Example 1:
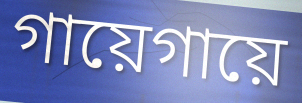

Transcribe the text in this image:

গায়েগায়ে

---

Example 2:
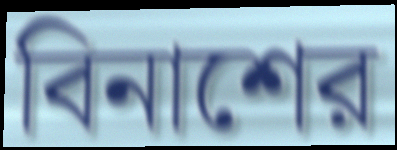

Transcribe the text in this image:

বিনাশের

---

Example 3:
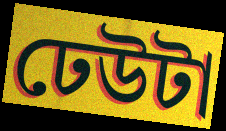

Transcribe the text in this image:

ঢেউটা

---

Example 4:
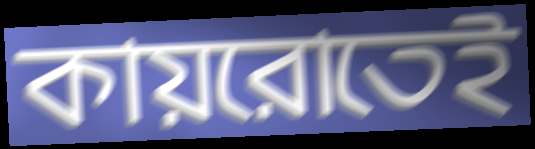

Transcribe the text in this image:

কায়রোতেই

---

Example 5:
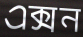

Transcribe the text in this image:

এক্সন